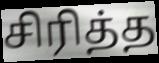
சிரித்த